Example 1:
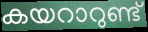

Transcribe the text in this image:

കയറാറുണ്ട്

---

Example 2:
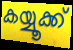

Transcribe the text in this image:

കയ്യൂക്ക്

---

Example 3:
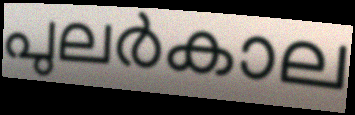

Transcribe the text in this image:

പുലർകാല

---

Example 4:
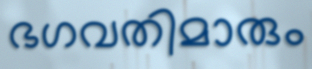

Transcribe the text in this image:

ഭഗവതിമാരും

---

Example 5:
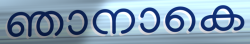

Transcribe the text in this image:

ഞാനാകെ